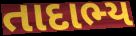
તાદાભ્ય